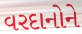
વરદાનોને